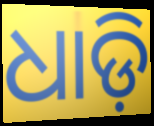
ଧାଡ଼ି